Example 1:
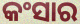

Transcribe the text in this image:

କଂସାର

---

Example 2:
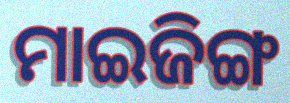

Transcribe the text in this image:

ମାଇଜିଙ୍ଗ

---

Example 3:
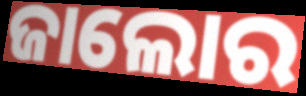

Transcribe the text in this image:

ଜାଲୋର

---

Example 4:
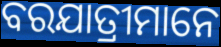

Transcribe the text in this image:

ବରଯାତ୍ରୀମାନେ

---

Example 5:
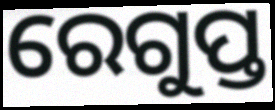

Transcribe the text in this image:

ରେଗୁପ୍ତ